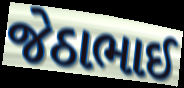
જેઠાભાઈ